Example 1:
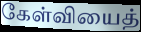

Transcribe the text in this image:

கேள்வியைத்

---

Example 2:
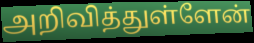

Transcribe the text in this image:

அறிவித்துள்ளேன்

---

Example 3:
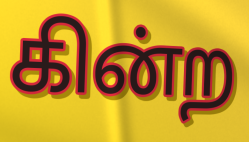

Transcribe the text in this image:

கின்ற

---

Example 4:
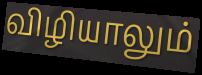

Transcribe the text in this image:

விழியாலும்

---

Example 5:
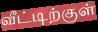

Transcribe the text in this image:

வீட்டிற்குள்